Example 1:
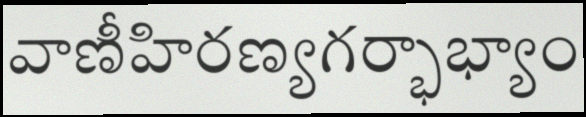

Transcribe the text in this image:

వాణీహిరణ్యగర్భాభ్యాం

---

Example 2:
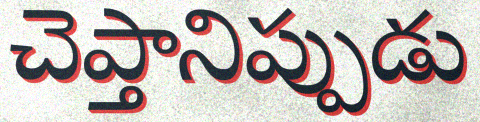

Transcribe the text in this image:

చెప్తానిప్పుడు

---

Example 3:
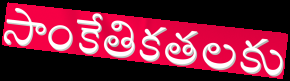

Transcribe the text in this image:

సాంకేతికతలకు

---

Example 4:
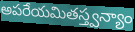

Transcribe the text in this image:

అపరేయమితస్త్వన్యాం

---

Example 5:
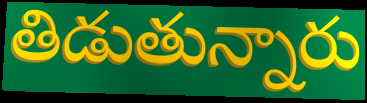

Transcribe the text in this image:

తిడుతున్నారు